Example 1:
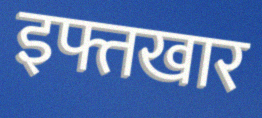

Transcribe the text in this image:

इफ्तखार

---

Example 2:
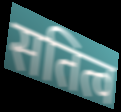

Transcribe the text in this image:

सतित्व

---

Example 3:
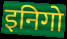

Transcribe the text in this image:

इनिगो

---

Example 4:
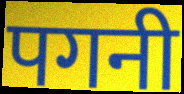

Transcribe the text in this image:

पगनी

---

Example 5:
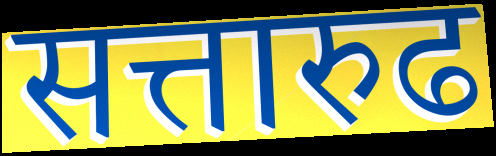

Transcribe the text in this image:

सत्तारुढ